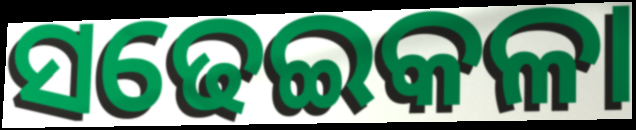
ସଢେଇକଳା